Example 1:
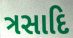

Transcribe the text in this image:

ત્રસાદિ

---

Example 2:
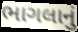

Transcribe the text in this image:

ભાગલાનું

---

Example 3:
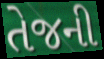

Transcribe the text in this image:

તેજની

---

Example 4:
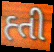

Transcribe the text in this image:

હ્તી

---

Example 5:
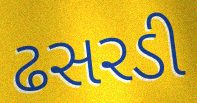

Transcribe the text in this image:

ઢસરડી